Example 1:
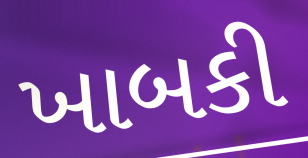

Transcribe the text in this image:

ખાબકી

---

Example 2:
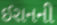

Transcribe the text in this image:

ઈરાનની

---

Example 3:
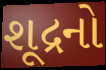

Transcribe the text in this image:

શૂદ્રનો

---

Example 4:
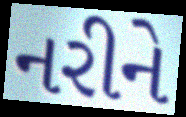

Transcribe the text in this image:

નરીને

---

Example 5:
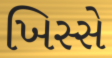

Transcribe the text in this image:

ખિસ્સે